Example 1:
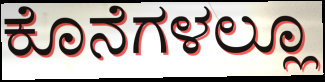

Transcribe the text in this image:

ಕೊನೆಗಳಲ್ಲೂ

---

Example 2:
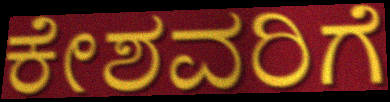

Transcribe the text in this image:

ಕೇಶವರಿಗೆ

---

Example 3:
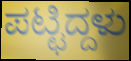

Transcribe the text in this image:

ಪಟ್ಟಿದ್ದಳು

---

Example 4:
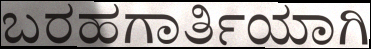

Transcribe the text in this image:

ಬರಹಗಾರ್ತಿಯಾಗಿ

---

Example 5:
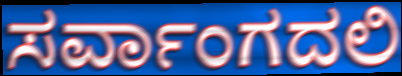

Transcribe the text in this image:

ಸರ್ವಾಂಗದಲಿ